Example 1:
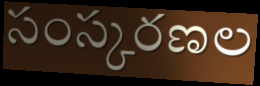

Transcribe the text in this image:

సంస్కరణల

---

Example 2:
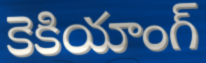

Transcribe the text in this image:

కెకియాంగ్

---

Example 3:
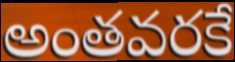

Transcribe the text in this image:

అంతవరకే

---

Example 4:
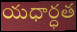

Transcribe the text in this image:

యధార్ధత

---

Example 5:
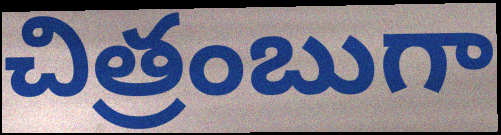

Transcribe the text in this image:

చిత్రంబుగా